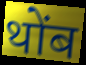
थोंब